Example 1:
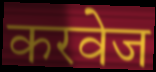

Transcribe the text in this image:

करवेज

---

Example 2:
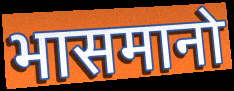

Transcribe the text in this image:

भासमानो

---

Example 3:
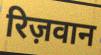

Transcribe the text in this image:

रिज़वान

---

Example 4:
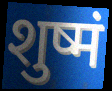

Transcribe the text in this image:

शुष्मं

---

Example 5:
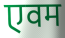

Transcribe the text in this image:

एवम